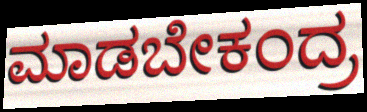
ಮಾಡಬೇಕಂದ್ರ